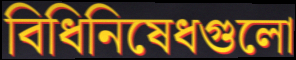
বিধিনিষেধগুলো